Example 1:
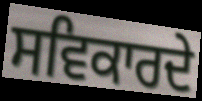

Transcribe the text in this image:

ਸਵਿਕਾਰਦੇ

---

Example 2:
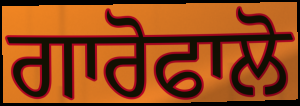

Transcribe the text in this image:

ਗਾਰੋਫਾਲੋ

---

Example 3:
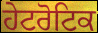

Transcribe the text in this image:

ਹੇਟਰੋਟਿਕ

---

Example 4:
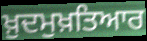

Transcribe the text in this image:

ਖ਼ੁਦਮੁਖ਼ਤਿਆਰ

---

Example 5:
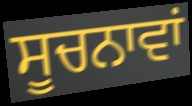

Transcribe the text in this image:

ਸੂਚਨਾਵਾਂ